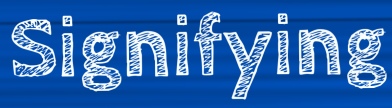
Signifying